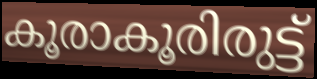
കൂരാകൂരിരുട്ട്